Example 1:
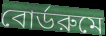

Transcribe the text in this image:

বোর্ডরুমে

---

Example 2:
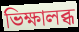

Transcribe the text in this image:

ভিক্ষালব্ধ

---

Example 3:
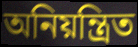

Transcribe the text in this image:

অনিয়ন্ত্রিত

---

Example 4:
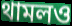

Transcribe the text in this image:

থামলও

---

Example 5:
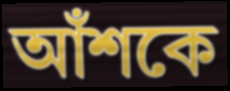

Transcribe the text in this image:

আঁশকে